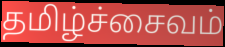
தமிழ்ச்சைவம்